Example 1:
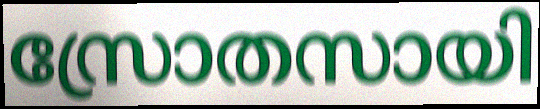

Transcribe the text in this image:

സ്രോതസായി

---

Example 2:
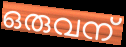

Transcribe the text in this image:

ഒരുവന്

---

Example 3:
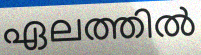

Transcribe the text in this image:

ഏലത്തിൽ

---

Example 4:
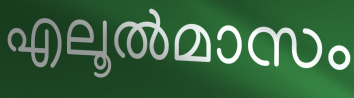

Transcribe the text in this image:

എലൂൽമാസം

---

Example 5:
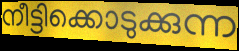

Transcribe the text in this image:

നീട്ടിക്കൊടുക്കുന്ന